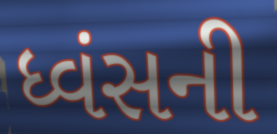
ધ્વંસની